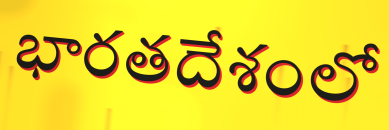
భారతదేశంలో